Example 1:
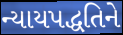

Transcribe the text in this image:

ન્યાયપદ્ધતિને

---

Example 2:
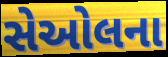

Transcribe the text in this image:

સેઓલના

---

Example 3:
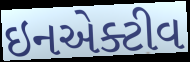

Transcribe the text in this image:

ઇનએક્ટીવ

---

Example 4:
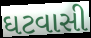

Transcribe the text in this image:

ઘટવાસી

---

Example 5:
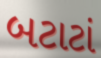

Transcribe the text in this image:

બટાટાં